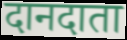
दानदाता